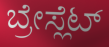
ಬ್ರೇಸ್ಲೆಟ್